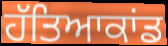
ਹੱਤਿਆਕਾਂਡ